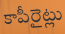
కాపీరైట్లు